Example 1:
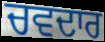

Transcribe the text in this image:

ਚਵਦਾਰ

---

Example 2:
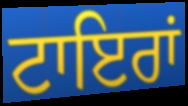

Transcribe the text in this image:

ਟਾਇਰਾਂ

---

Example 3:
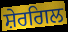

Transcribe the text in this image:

ਸ਼ੇਰਗਿਲ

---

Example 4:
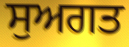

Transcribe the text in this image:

ਸੁਅਗਤ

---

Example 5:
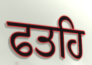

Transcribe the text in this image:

ਫਤਹਿ